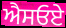
ਐਸਓਏ